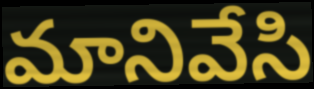
మానివేసి